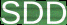
SDD